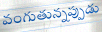
వంగుతున్నప్పుడు